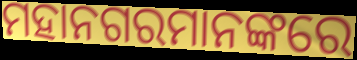
ମହାନଗରମାନଙ୍କରେ